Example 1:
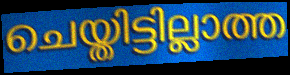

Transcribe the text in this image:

ചെയ്തിട്ടില്ലാത്ത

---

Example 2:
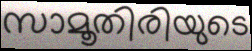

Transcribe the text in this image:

സാമൂതിരിയുടെ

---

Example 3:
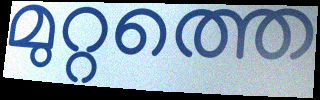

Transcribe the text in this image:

മുറ്റത്തെ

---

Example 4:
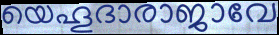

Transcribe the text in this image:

യെഹൂദാരാജാവേ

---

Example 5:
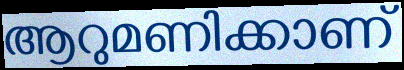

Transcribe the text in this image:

ആറുമണിക്കാണ്